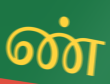
ண்